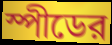
স্পীডের